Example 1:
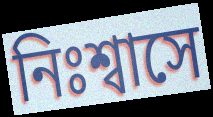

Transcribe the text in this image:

নিঃশ্বাসে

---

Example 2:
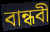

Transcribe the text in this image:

বান্ধবী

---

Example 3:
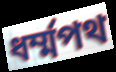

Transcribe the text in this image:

ধর্ম্মপথ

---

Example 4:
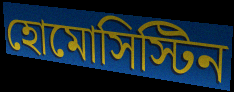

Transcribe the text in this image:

হোমোসিস্টিন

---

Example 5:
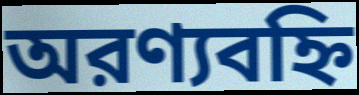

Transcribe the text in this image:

অরণ্যবহ্নি